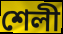
শেলী